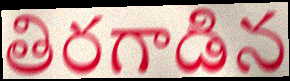
తిరగాడిన